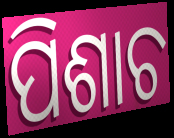
ପିଶାଚ